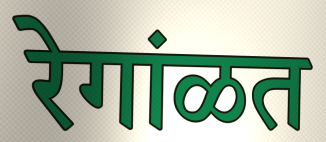
रेगांळत